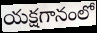
యక్షగానంలో